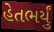
હેતભર્યું